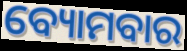
ବ୍ୟୋମବାର